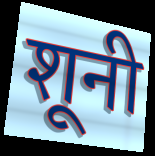
शूनी